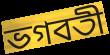
ভগবতী